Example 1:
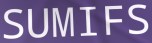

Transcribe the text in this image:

SUMIFS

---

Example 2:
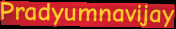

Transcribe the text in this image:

Pradyumnavijay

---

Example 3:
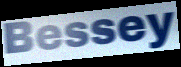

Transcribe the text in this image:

Bessey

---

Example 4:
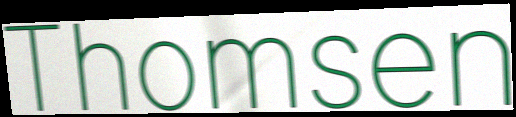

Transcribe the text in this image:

Thomsen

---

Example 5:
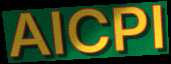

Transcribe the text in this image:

AICPI